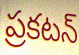
ప్రకటన్